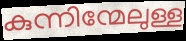
കുന്നിന്മേലുള്ള